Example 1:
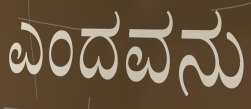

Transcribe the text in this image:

ಎಂದವನು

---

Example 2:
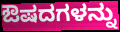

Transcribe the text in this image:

ಔಷದಗಳನ್ನು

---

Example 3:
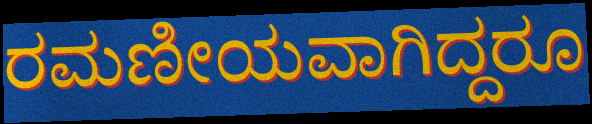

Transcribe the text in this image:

ರಮಣೀಯವಾಗಿದ್ದರೂ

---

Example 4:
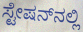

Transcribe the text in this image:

ಸ್ಟೇಷನ್‌ನಲ್ಲಿ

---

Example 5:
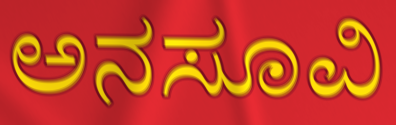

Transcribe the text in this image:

ಅನಸೂವಿ